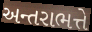
અન્તરાભત્તે